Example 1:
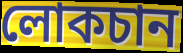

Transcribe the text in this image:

লোকচান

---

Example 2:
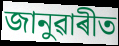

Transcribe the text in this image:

জানুৱাৰীত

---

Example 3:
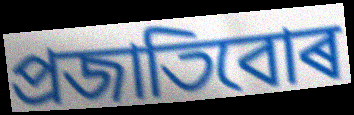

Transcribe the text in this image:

প্ৰজাতিবোৰ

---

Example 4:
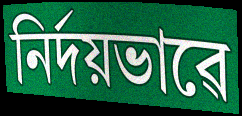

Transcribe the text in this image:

নিৰ্দয়ভাৱে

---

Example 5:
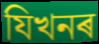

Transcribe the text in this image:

যিখনৰ